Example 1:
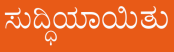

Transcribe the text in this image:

ಸುದ್ಧಿಯಾಯಿತು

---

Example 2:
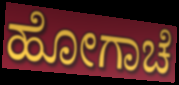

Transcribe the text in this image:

ಹೋಗಾಚೆ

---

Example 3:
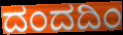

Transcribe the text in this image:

ದಂದದಿಂ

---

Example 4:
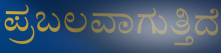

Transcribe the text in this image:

ಪ್ರಬಲವಾಗುತ್ತಿದೆ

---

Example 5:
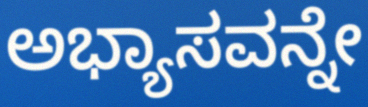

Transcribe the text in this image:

ಅಭ್ಯಾಸವನ್ನೇ